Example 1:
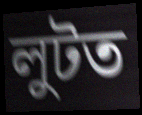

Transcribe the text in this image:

লুটত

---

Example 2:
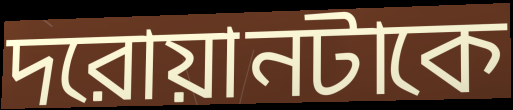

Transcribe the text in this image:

দরোয়ানটাকে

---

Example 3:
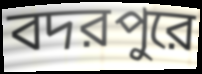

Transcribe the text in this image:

বদরপুরে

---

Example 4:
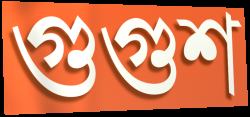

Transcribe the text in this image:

গুগুশ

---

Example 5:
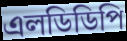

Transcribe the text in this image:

এলডিডিপি